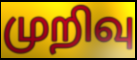
முறிவு